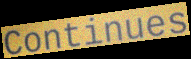
Continues